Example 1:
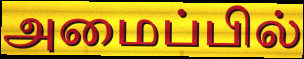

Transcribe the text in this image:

அமைப்பில்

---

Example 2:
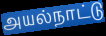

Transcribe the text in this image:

அயல்நாட்டு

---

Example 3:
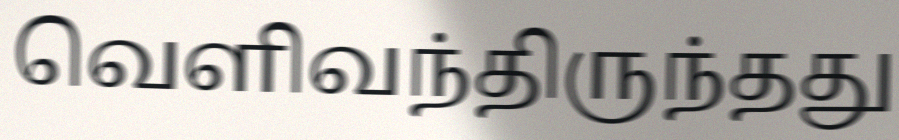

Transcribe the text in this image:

வெளிவந்திருந்தது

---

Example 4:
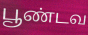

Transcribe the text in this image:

பூண்டவ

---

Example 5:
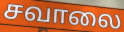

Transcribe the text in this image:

சவாலை